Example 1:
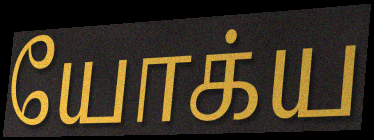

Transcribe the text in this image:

யோக்ய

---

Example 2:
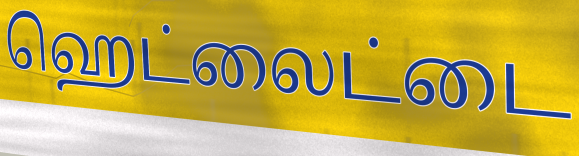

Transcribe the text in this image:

ஹெட்லைட்டை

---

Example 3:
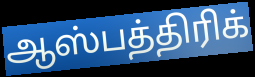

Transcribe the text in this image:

ஆஸ்பத்திரிக்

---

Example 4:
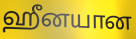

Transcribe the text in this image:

ஹீனயான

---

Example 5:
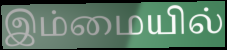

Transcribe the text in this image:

இம்மையில்